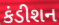
કંડીશન